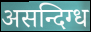
असन्दिग्ध